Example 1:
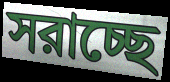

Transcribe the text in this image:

সরাচ্ছে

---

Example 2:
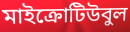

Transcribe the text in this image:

মাইক্রোটিউবুল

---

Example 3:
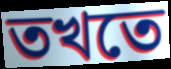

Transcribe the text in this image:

তখতে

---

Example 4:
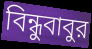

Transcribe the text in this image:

বিন্ধুবাবুর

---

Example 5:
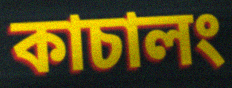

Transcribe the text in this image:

কাচালং